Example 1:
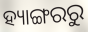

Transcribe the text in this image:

ହ୍ୟାଙ୍ଗରରୁ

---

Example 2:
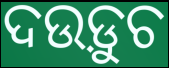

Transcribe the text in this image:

ଦଉଡ଼ୁଚ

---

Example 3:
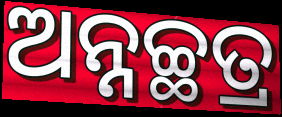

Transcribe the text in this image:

ଅନ୍ନଚ୍ଛତ୍ର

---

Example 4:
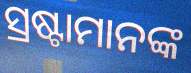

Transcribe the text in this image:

ସ୍ରଷ୍ଟାମାନଙ୍କ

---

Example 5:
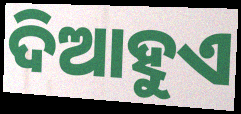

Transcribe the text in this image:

ଦିଆହୁଏ